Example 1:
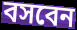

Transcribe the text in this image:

বসবেন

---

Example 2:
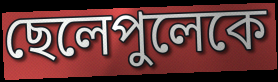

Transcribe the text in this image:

ছেলেপুলেকে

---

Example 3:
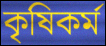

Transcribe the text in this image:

কৃষিকর্ম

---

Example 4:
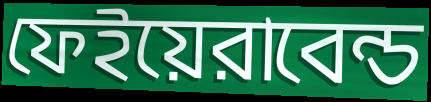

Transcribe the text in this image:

ফেইয়েরাবেন্ড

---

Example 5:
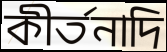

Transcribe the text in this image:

কীর্তনাদি